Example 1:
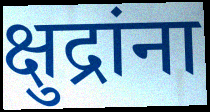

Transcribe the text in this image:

क्षुद्रांना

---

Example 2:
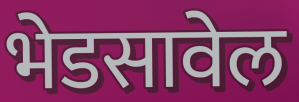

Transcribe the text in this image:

भेडसावेल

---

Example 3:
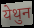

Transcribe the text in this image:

येथुन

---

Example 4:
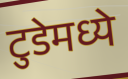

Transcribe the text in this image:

टुडेमध्ये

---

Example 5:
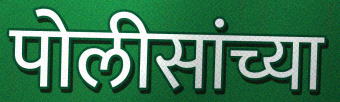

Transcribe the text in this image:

पोलीसांच्या